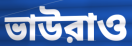
ভাউরাও